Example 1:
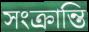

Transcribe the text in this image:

সংক্রান্তি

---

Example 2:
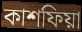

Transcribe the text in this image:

কাশফিয়া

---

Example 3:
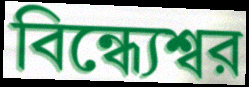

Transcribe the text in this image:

বিন্ধ্যেশ্বর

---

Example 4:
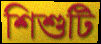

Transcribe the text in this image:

শিশুটি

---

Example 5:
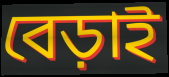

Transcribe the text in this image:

বেড়াই